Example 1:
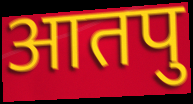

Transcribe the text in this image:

आतपु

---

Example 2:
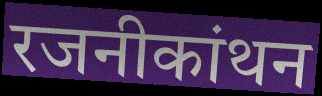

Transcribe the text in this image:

रजनीकांथन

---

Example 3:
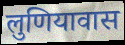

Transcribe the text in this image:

लुणियावास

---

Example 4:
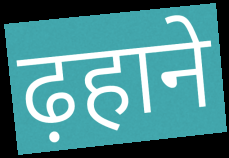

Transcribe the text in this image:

ढ़हाने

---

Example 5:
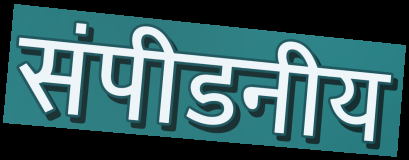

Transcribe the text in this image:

संपीडनीय